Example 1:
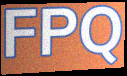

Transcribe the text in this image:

FPQ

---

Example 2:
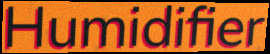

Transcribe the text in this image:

Humidifier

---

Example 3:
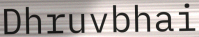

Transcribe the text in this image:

Dhruvbhai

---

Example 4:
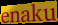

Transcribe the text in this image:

enaku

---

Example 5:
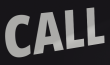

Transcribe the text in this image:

CALL